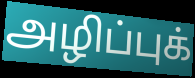
அழிப்புக்